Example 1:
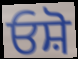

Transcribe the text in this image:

ਓਸ਼ੋ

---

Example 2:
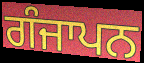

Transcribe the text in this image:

ਗੰਜਾਪਨ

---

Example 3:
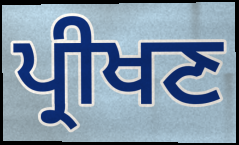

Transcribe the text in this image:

ਪ੍ਰੀਖਣ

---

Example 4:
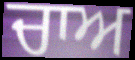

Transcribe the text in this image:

ਚਾਅ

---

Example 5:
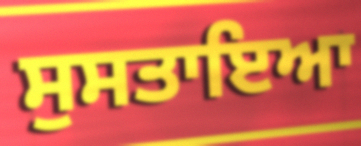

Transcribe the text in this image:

ਸੁਸਤਾਇਆ